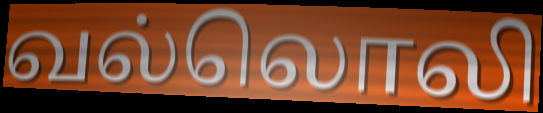
வல்லொலி